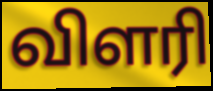
விளரி